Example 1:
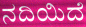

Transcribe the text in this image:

ನದಿಯಿದೆ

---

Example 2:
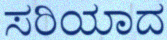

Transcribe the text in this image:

ಸರಿಯಾದ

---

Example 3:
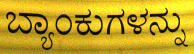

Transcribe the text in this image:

ಬ್ಯಾಂಕುಗಳನ್ನು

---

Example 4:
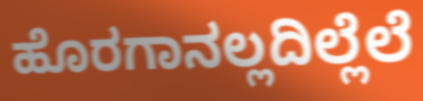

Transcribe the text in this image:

ಹೊರಗಾನಲ್ಲದಿಲ್ಲೆಲೆ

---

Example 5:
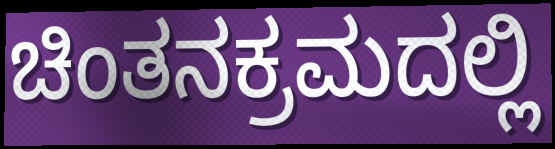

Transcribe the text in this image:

ಚಿಂತನಕ್ರಮದಲ್ಲಿ